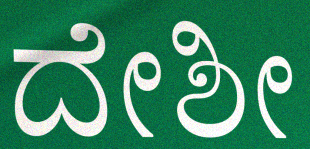
ದೇಶೀ